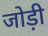
जोड़ी